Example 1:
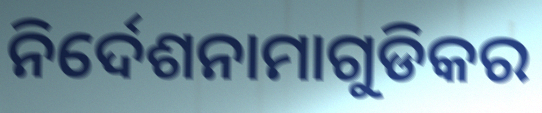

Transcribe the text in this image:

ନିର୍ଦେଶନାମାଗୁଡିକର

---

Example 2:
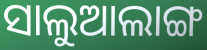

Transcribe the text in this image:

ସାଲୁଆଲାଙ୍ଗ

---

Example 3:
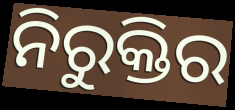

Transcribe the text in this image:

ନିରୁକ୍ତିର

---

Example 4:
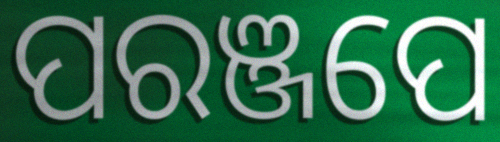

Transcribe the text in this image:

ପରଞ୍ଜପେ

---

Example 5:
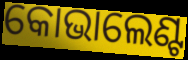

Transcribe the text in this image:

କୋଭାଲେଣ୍ଟ